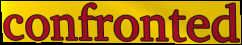
confronted